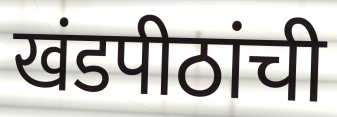
खंडपीठांची